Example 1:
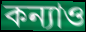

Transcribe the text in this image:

কন্যাও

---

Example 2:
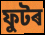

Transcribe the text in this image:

ফুটৰ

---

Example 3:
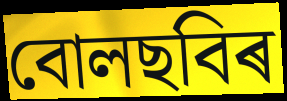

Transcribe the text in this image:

বোলছবিৰ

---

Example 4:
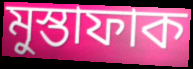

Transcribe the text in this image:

মুস্তাফাক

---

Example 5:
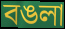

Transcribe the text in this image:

বঙলা